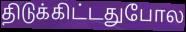
திடுக்கிட்டதுபோல